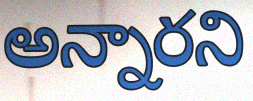
అన్నారని